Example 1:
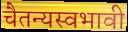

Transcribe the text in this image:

चैतन्यस्वभावी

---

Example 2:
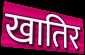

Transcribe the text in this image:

खातिर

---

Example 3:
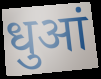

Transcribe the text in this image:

धुआं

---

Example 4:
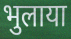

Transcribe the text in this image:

भुलाया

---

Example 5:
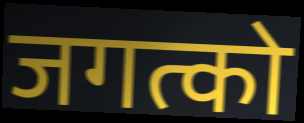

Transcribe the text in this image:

जगत्को